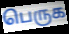
பெருக